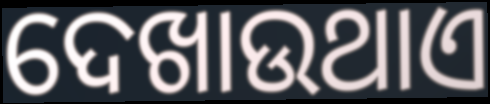
ଦେଖାଉଥାଏ